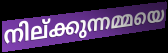
നില്ക്കുന്നമ്മയെ